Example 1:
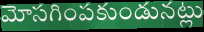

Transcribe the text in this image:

మోసగింపకుండునట్లు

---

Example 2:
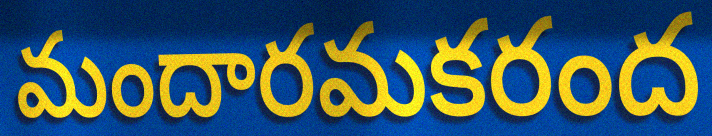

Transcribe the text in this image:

మందారమకరంద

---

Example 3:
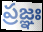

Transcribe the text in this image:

ప్రజ్ఞః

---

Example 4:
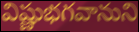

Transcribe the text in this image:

విష్ణుభగవానుని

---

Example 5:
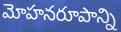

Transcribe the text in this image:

మోహనరూపాన్ని